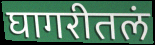
घागरीतलं